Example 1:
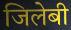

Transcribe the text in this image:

जिलेबी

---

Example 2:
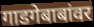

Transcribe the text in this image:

गाडगेबाबांवर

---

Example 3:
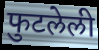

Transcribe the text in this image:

फुटलेली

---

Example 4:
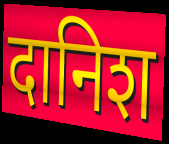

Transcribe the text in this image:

दानिश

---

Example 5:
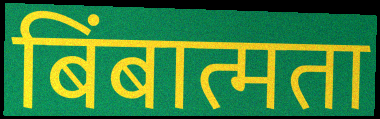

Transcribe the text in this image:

बिंबात्मता